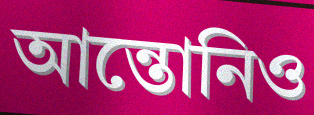
আন্তোনিও